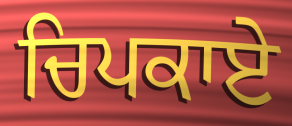
ਚਿਪਕਾਏ